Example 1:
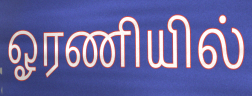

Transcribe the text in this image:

ஓரணியில்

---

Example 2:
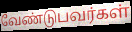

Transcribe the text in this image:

வேண்டுபவர்கள்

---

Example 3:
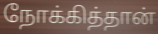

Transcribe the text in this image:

நோக்கித்தான்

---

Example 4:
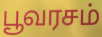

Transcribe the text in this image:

பூவரசம்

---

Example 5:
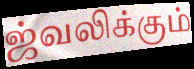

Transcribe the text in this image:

ஜ்வலிக்கும்